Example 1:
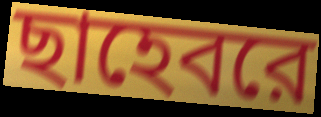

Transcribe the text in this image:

ছাহেবরে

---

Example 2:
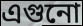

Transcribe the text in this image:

এগুনো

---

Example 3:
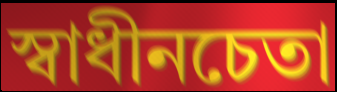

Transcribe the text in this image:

স্বাধীনচেতা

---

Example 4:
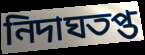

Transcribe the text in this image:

নিদাঘতপ্ত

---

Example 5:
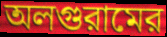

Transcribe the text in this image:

অলগুরামের